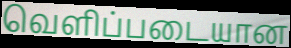
வெளிப்படையான